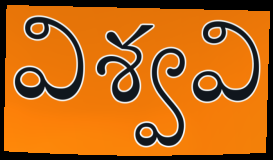
విశ్వవి